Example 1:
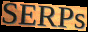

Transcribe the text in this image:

SERPs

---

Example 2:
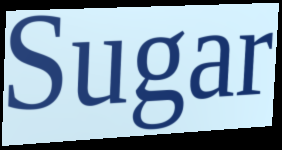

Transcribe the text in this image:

Sugar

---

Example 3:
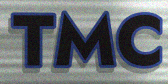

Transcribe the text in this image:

TMC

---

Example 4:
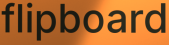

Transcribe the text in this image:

flipboard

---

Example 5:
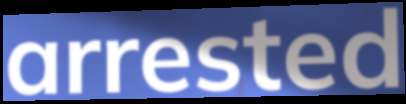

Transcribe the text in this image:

arrested